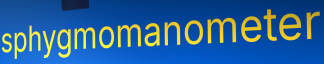
sphygmomanometer